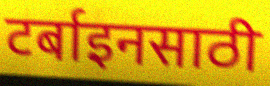
टर्बाइनसाठी